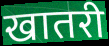
खातरी